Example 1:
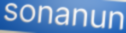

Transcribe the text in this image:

sonanun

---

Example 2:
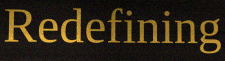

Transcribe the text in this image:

Redefining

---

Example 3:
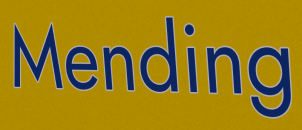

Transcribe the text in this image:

Mending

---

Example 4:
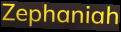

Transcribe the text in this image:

Zephaniah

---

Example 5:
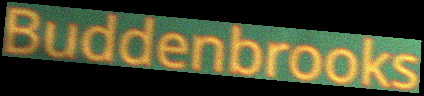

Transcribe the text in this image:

Buddenbrooks